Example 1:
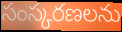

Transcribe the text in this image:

సంస్కరణలను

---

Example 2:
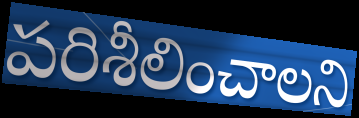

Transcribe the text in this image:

పరిశీలించాలని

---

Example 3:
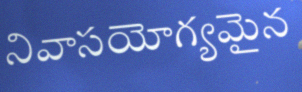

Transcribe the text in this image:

నివాసయోగ్యమైన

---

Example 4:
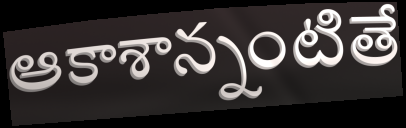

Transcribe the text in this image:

ఆకాశాన్నంటితే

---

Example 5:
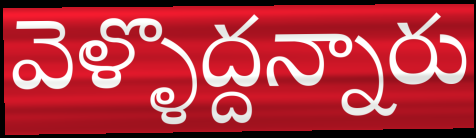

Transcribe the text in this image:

వెళ్ళొద్దన్నారు